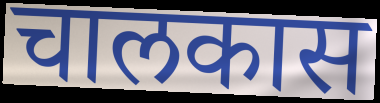
चालकास